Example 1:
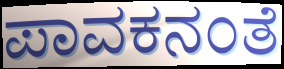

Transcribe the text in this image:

ಪಾವಕನಂತೆ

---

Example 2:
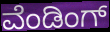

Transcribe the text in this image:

ವೆಂಡಿಂಗ್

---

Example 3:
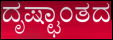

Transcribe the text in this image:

ದೃಷ್ಟಾಂತದ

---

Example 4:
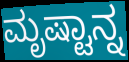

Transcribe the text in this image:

ಮೃಷ್ಟಾನ್ನ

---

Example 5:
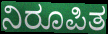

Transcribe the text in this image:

ನಿರೂಪಿತ